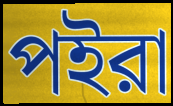
পইরা